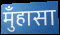
मुँहासा